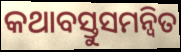
କଥାବସ୍ତୁସମନ୍ୱିତ